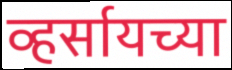
व्हर्सायच्या